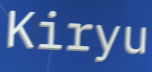
Kiryu